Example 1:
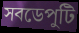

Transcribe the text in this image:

সবডেপুটি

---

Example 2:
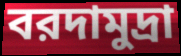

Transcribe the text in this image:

বরদামুদ্রা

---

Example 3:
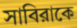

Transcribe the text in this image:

সাবিরাকে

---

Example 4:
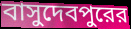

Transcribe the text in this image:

বাসুদেবপুরের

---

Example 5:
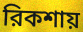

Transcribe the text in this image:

রিকশায়